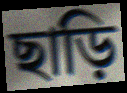
ছাড়ি